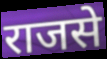
राजसे